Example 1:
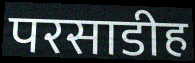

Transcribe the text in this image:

परसाडीह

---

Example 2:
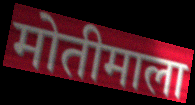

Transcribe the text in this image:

मोतीमाला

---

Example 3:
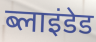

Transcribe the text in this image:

ब्लाइंडेड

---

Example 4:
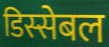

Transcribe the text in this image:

डिस्सेबल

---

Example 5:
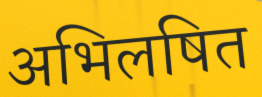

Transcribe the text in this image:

अभिलषित